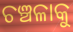
ଚଞ୍ଚଳାକୁ